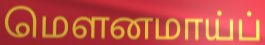
மௌனமாய்ப்